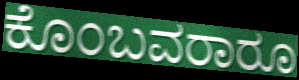
ಕೊಂಬವರಾರೂ